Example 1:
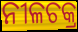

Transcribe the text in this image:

ନୀଳଚକ୍ର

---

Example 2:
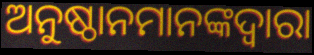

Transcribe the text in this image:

ଅନୁଷ୍ଠାନମାନଙ୍କଦ୍ଵାରା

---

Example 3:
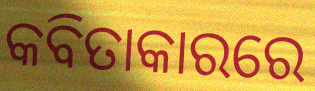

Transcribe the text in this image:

କବିତାକାରରେ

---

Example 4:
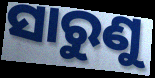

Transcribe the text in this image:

ସାରୁଣୁ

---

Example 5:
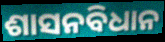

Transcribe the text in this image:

ଶାସନବିଧାନ